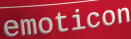
emoticon